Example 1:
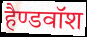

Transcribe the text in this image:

हैण्डवॉश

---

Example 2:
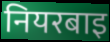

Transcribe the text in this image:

नियरबाइ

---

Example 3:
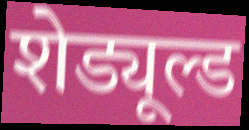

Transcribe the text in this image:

शेड्यूल्ड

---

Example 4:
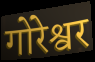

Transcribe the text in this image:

गोरेश्वर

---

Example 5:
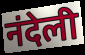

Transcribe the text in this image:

नंदेली